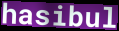
hasibul